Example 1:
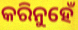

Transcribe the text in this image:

କରିନୁହେଁ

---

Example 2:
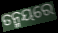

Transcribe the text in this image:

ତନ୍ମୟରେ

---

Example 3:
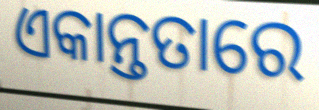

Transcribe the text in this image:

ଏକାନ୍ତତାରେ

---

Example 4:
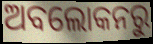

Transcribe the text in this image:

ଅବଲୋକନରୁ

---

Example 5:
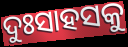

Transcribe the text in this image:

ଦୁଃସାହସକୁ